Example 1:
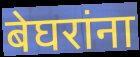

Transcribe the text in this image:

बेघरांना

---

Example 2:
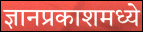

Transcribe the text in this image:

ज्ञानप्रकाशमध्ये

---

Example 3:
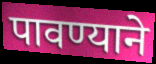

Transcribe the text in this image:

पावण्याने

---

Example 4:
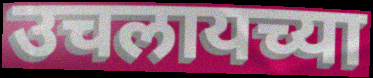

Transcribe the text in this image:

उचलायच्या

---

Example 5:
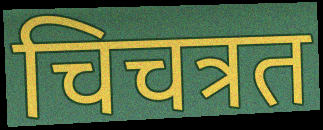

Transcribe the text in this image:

चिचत्रत